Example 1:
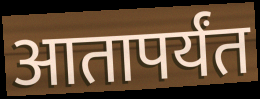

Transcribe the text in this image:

आतापर्यंत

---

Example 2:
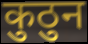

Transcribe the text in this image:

कुठुन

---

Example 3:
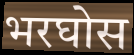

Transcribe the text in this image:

भरघोस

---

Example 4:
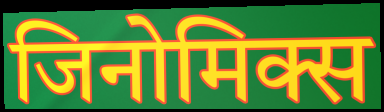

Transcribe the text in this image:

जिनोमिक्स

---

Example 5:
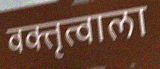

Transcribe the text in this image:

वक्तृत्वाला